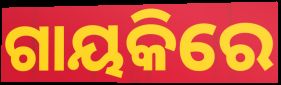
ଗାୟକିରେ